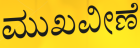
ಮುಖವೀಣೆ